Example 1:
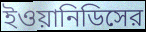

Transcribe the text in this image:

ইওয়ানিডিসের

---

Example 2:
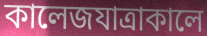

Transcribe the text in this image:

কালেজযাত্রাকালে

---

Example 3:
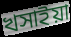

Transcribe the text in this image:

খসাইয়া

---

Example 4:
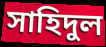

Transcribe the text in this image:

সাহিদুল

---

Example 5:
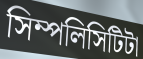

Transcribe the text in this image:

সিম্পলিসিটিটা